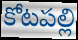
కోటపల్లి